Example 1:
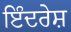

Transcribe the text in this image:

ਇੰਦਰੇਸ਼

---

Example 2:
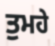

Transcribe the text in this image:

ਤੁਮਹੇ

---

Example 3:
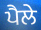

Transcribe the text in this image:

ਪੈਲੇ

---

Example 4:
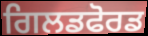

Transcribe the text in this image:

ਗਿਲਡਫੋਰਡ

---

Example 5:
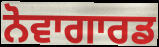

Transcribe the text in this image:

ਨੋਵਾਗਾਰਡ